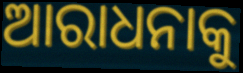
ଆରାଧନାକୁ